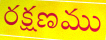
రక్షణము